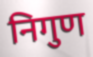
निगुण